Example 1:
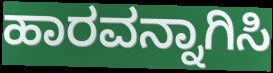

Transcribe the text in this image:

ಹಾರವನ್ನಾಗಿಸಿ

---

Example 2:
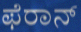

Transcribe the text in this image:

ಫೆರಾನ್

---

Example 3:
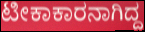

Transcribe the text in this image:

ಟೀಕಾಕಾರನಾಗಿದ್ದ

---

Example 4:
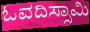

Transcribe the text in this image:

ಓವದಿಸ್ಸಾಮಿ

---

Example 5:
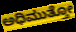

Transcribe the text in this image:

ಅಧಿಮುತ್ತೋ